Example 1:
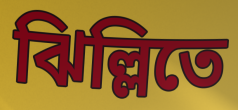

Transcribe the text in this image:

ঝিল্লিতে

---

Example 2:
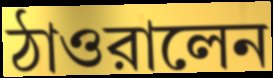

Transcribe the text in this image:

ঠাওরালেন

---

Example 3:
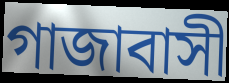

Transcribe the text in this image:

গাজাবাসী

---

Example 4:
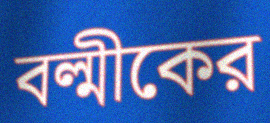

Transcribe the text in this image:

বল্মীকের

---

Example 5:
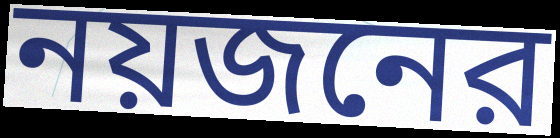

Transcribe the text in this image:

নয়জনের